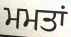
ਮਮਤਾਂ